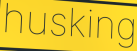
husking